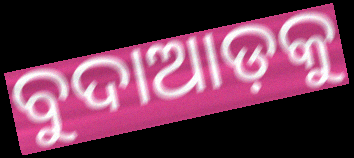
ବୁଦାଆଡ଼କୁ